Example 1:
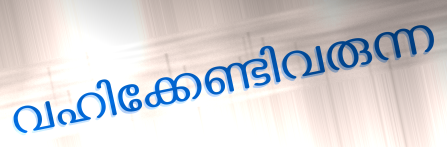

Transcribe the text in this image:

വഹിക്കേണ്ടിവരുന്ന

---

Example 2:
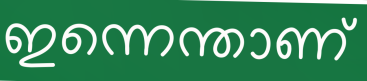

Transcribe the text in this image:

ഇന്നെന്താണ്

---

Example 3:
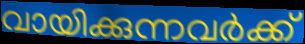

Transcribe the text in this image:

വായിക്കുന്നവർക്ക്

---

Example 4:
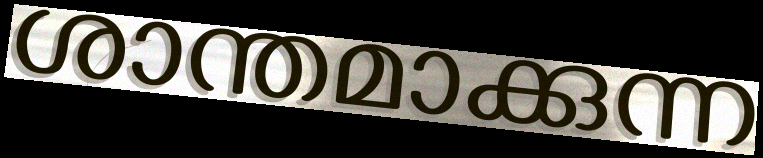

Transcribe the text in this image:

ശാന്തമാക്കുന്ന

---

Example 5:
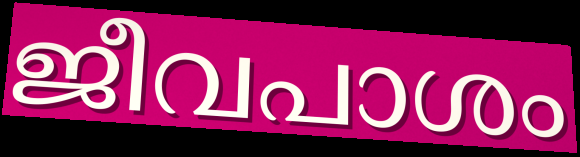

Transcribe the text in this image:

ജീവപാശം